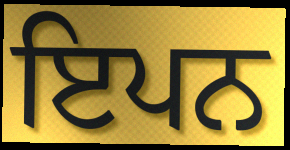
ਇਪਨ